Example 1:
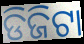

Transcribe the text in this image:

ଡିଜିଟା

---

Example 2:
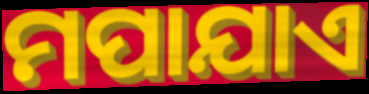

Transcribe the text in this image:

ମପାଯାଏ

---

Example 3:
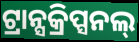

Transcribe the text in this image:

ଟ୍ରାନ୍ସକ୍ରିପ୍ସନଲ୍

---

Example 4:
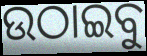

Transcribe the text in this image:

ଉଠାଇବୁ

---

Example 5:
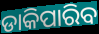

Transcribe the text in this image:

ଡାକିପାରିବ